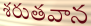
శరుతవాన